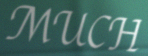
MUCH